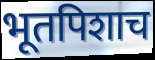
भूतपिशाच